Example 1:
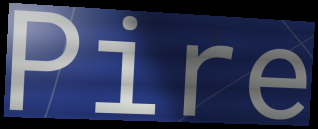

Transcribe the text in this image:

Pire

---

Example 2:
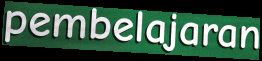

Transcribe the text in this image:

pembelajaran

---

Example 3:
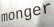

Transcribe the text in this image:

monger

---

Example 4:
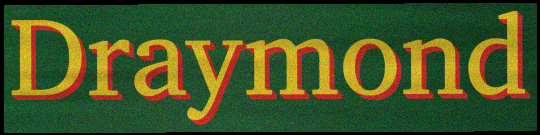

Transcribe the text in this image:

Draymond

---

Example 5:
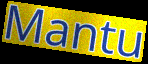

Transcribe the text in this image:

Mantu